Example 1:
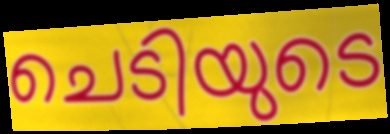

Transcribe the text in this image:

ചെടിയുടെ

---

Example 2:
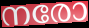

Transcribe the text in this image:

നരോ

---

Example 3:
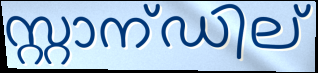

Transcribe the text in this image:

സ്റ്റാന്ഡില്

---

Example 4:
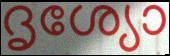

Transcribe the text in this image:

ദൃശ്യോ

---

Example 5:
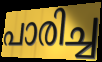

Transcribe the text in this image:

പാരിച്ച